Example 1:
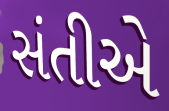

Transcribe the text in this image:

સંતીએ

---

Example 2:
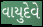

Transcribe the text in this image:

વાયુદેવે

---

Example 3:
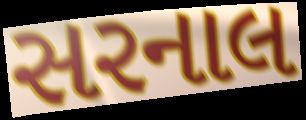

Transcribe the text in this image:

સરનાલ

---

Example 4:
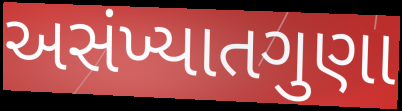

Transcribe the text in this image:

અસંખ્યાતગુણા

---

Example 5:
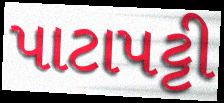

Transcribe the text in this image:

પાટાપટ્ટી